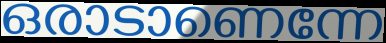
ഒരാടാണെന്നേ